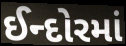
ઈન્દોરમાં